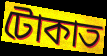
টোকাত